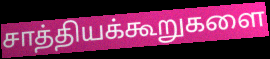
சாத்தியக்கூறுகளை